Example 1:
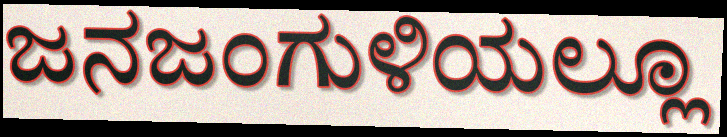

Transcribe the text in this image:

ಜನಜಂಗುಳಿಯಲ್ಲೂ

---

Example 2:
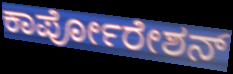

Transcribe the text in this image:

ಕಾರ್ಪೋರೇಶನ್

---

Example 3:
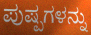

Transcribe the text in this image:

ಪುಷ್ಪಗಳನ್ನು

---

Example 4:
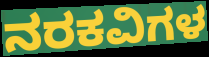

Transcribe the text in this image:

ನರಕವಿಗಳ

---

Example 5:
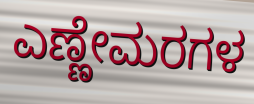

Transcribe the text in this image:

ಎಣ್ಣೇಮರಗಳ